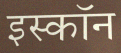
इस्कॉन